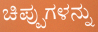
ಚಿಪ್ಪುಗಳನ್ನು